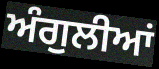
ਅੰਗੁਲੀਆਂ